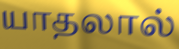
யாதலால்